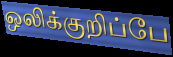
ஒலிக்குறிப்பே